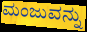
ಮಂಜುವನ್ನು